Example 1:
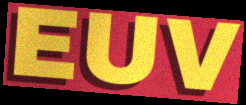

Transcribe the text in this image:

EUV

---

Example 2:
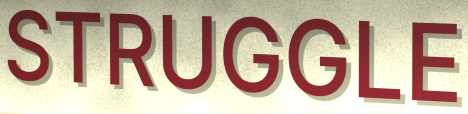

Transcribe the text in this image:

STRUGGLE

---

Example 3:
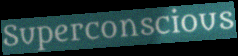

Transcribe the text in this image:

Superconscious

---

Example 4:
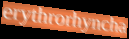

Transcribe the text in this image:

erythrorhyncha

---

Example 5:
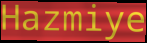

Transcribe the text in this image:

Hazmiye